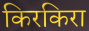
किरकिरा